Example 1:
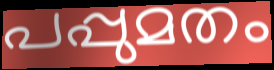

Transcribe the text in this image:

പപ്പുമതം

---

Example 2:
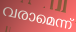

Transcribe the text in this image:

വരാമെന്ന്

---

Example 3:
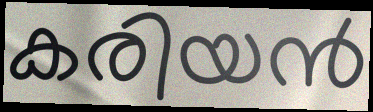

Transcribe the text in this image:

കരിയൻ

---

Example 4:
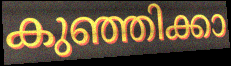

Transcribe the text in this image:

കുഞ്ഞിക്കാ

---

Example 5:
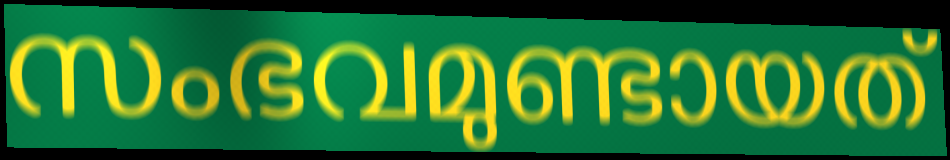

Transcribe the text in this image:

സംഭവമുണ്ടായത്